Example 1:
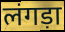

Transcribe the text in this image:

लंगड़ा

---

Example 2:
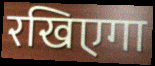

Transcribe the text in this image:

रखिएगा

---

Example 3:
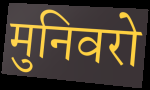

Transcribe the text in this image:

मुनिवरो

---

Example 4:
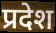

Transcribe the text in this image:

प्रदेश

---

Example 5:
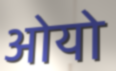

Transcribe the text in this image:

ओयो